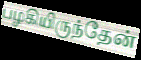
பழகியிருந்தேன்